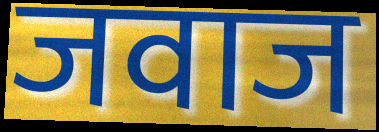
जवाज